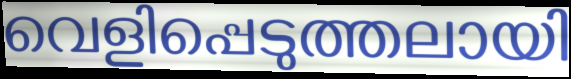
വെളിപ്പെടുത്തലായി